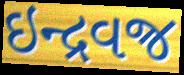
ઇન્દ્રવજ્ર